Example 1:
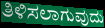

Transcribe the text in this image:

ತಿಳಿಸಲಾಗುವುದು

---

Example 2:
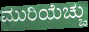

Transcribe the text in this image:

ಮುರಿಯೆಚ್ಚು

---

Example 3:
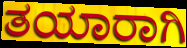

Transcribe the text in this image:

ತಯಾರಾಗಿ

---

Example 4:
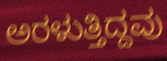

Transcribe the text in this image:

ಅರಳುತ್ತಿದ್ದವು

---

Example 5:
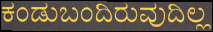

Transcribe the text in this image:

ಕಂಡುಬಂದಿರುವುದಿಲ್ಲ